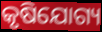
କୃଷିଯୋଗ୍ୟ